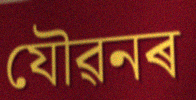
যৌৱনৰ